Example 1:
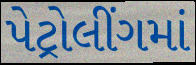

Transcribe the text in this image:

પેટ્રોલીંગમાં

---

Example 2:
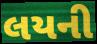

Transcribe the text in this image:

લયની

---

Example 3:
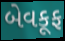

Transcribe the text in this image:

બેવકૂફ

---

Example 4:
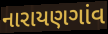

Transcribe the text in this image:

નારાયણગાંવ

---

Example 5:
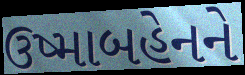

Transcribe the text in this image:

ઉષ્માબહેનને